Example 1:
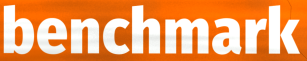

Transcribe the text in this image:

benchmark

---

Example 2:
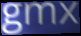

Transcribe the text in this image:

gmx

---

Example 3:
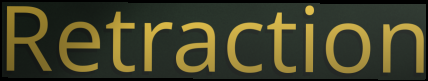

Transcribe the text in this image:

Retraction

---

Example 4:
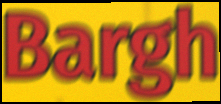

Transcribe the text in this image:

Bargh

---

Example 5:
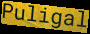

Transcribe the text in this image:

Puligal